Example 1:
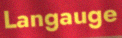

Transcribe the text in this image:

Langauge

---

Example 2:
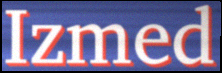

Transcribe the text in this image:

Izmed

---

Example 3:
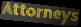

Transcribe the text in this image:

Attorneys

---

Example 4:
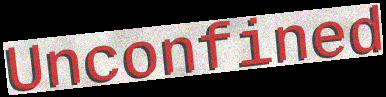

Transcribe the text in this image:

Unconfined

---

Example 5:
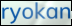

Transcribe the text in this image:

ryokan